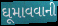
ઘૂમાવવાની